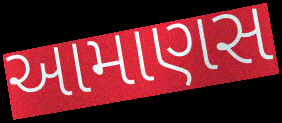
આમાણસ